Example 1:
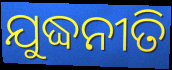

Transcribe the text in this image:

ଯୁଦ୍ଧନୀତି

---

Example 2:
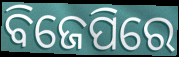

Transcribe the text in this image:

ବିଜେପିରେ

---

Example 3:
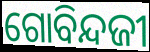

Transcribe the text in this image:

ଗୋବିନ୍ଦଜୀ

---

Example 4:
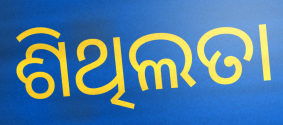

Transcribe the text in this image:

ଶିଥିଲତା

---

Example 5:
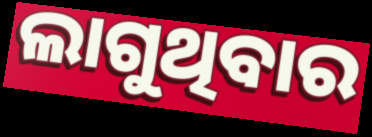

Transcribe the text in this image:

ଲାଗୁଥିବାର